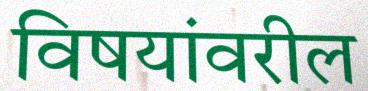
विषयांवरील